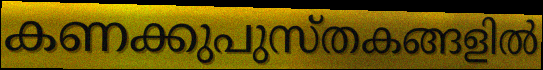
കണക്കുപുസ്തകങ്ങളിൽ